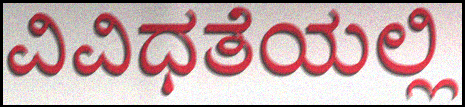
ವಿವಿಧತೆಯಲ್ಲಿ